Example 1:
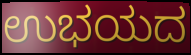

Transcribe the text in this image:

ಉಭಯದ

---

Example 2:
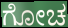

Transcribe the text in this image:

ಗೋಚ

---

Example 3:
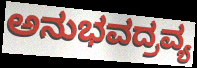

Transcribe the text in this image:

ಅನುಭವದ್ರವ್ಯ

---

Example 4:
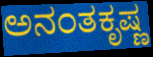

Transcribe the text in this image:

ಅನಂತಕೃಷ್ಣ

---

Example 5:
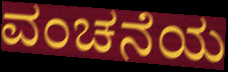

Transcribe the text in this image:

ವಂಚನೆಯ